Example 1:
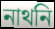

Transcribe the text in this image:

নাথনি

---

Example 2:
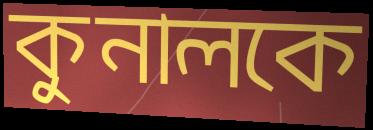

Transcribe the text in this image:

কুনালকে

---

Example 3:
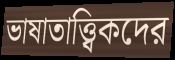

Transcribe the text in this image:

ভাষাতাত্ত্বিকদের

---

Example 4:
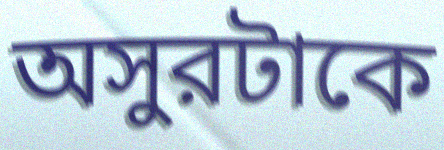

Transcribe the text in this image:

অসুরটাকে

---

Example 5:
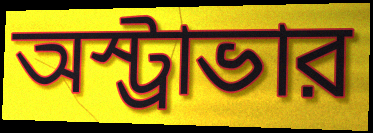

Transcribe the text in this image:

অস্ট্রাভার